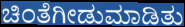
ಚಿಂತೆಗೀಡುಮಾಡಿತು